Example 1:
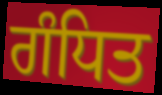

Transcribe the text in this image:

ਗੰਧਿਤ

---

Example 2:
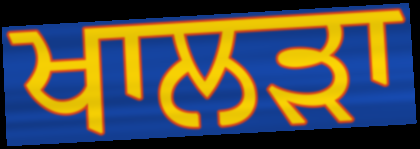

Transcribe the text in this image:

ਖਾਲੜਾ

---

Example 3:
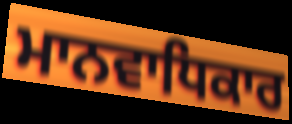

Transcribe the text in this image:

ਮਾਨਵਾਧਿਕਾਰ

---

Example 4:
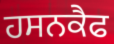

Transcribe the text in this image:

ਹਸਨਕੈਫ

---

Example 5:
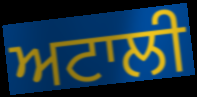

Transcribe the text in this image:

ਅਟਾਲੀ